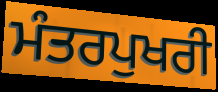
ਮੰਤਰਪੁਖਰੀ